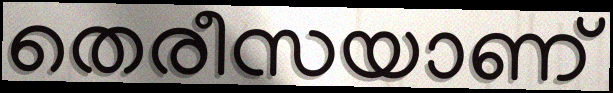
തെരീസയാണ്